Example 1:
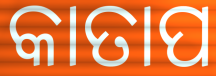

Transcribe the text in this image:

କାତାପ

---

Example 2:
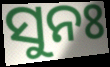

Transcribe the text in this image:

ସୁନଃ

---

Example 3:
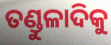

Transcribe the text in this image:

ତଣ୍ଡୁଳାଦିକୁ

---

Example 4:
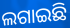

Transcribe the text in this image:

ଲଗାଇଛି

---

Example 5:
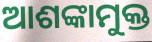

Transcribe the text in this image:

ଆଶଙ୍କାମୁକ୍ତ